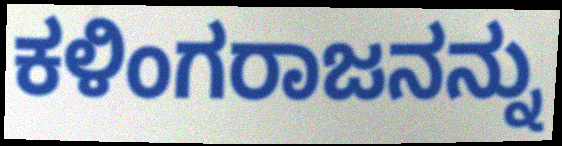
ಕಳಿಂಗರಾಜನನ್ನು